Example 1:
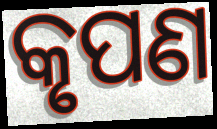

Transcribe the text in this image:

କୃପଣ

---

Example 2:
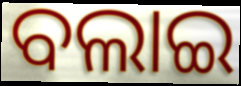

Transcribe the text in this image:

ବଲାଇ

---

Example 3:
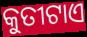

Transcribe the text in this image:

କୁତୀଟାଏ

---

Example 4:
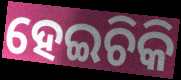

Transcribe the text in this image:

ହେଇଚିକି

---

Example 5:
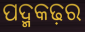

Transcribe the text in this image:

ପଦ୍ମକଢ଼ର